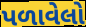
પળાવેલો